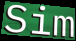
Sim